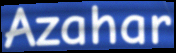
Azahar